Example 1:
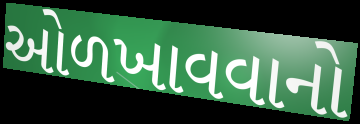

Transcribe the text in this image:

ઓળખાવવાનો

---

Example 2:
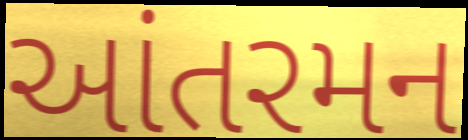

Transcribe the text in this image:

આંતરમન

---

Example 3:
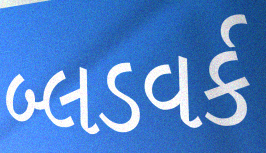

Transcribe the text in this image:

બ્લડવર્ક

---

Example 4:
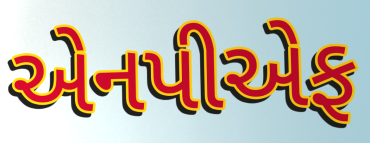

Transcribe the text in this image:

એનપીએફ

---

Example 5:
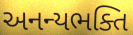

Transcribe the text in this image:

અનન્યભક્તિ